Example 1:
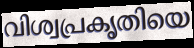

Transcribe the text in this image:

വിശ്വപ്രകൃതിയെ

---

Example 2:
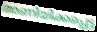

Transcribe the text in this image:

അണിയിക്കപ്പെട്ട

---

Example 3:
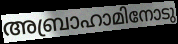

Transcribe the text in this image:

അബ്രാഹാമിനോടു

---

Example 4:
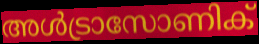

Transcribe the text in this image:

അൾട്രാസോണിക്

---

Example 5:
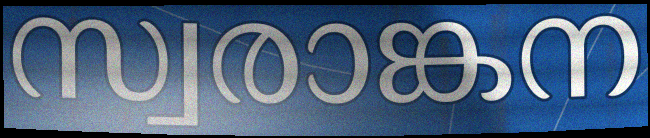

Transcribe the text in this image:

സ്വരാങ്കന